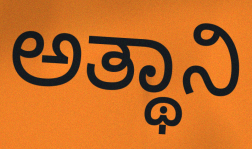
ಅತ್ಥಾನಿ